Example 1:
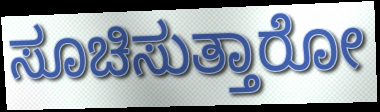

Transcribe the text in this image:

ಸೂಚಿಸುತ್ತಾರೋ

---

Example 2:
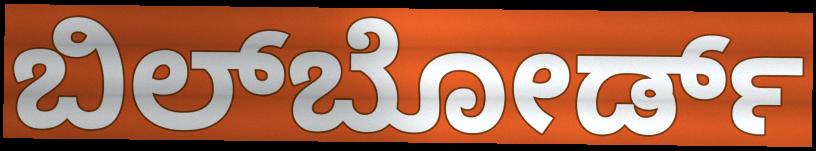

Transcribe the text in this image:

ಬಿಲ್‌ಬೋರ್ಡ್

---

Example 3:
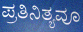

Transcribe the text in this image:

ಪ್ರತಿನಿತ್ಯವೂ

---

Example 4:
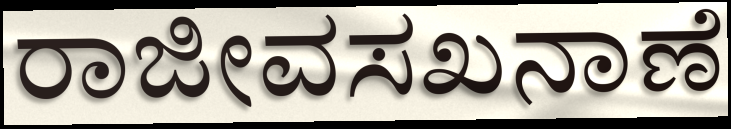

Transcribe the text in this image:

ರಾಜೀವಸಖನಾಣೆ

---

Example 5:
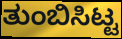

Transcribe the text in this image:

ತುಂಬಿಸಿಟ್ಟ